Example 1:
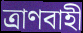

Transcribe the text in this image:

ত্রাণবাহী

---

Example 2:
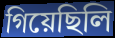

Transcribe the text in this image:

গিয়েছিলি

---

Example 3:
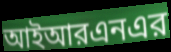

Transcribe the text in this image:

আইআরএনএর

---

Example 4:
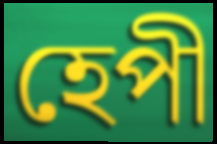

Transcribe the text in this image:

হেপী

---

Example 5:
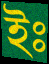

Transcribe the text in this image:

ইঃ